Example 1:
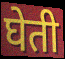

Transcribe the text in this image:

घेती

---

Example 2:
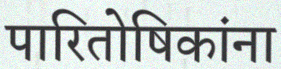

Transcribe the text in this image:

पारितोषिकांना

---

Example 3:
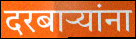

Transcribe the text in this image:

दरबाऱ्यांना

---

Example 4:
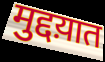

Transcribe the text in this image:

मुद्दय़ात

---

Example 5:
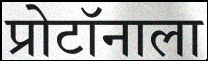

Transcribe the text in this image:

प्रोटॉनाला